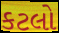
કટલો